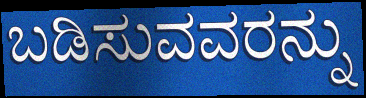
ಬಡಿಸುವವರನ್ನು